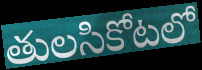
తులసికోటలో